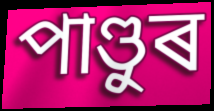
পাণ্ডুৰ